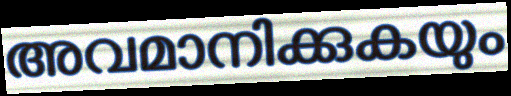
അവമാനിക്കുകയും